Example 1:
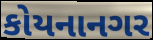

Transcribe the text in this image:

કોયનાનગર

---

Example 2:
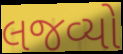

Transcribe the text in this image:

લજવ્યો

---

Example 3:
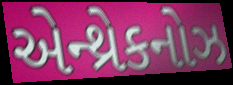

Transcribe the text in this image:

એન્થ્રેકનોઝ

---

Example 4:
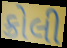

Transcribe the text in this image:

ક્રોલી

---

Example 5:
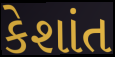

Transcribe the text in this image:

કેશાંત